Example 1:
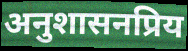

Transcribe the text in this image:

अनुशासनप्रिय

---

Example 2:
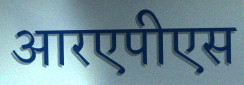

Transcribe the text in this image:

आरएपीएस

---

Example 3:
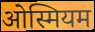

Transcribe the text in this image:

ओस्मियम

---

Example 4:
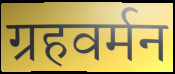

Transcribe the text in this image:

ग्रहवर्मन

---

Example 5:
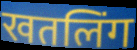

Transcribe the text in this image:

खतलिंग